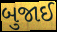
બુજાઈ